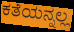
ಕತೆಯನ್ನಲ್ಲ